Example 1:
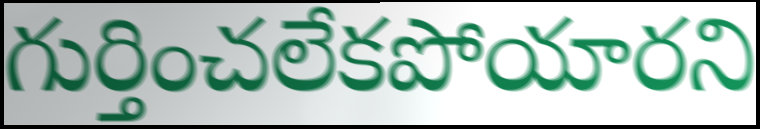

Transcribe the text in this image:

గుర్తించలేకపోయారని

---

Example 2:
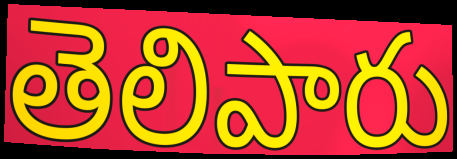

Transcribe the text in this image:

తెలిపారు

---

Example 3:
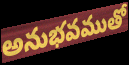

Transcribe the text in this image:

అనుభవముతో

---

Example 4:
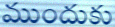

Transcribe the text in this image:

ముందుకు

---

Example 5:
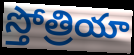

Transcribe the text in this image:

స్తోత్రియా